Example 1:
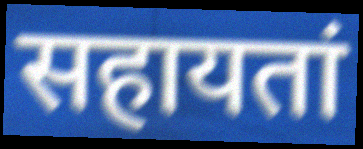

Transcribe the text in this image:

सहायतां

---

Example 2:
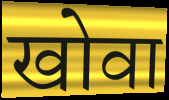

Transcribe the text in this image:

खोवा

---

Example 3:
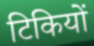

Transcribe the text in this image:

टिकियों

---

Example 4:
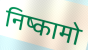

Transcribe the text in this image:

निष्कामो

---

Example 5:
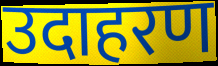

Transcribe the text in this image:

उदाहरण